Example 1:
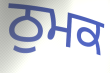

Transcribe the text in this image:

ਠੁਮਕ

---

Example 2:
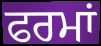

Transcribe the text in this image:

ਫਰਮਾਂ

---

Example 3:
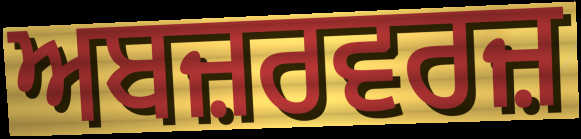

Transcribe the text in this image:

ਅਬਜ਼ਰਵਰਜ਼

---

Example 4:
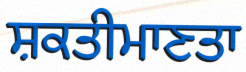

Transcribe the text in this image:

ਸ਼ਕਤੀਮਾਣਤਾ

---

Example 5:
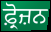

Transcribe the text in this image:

ਫ਼੍ਰੋਜ਼ਨ